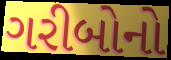
ગરીબોનો